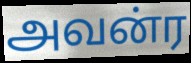
அவன்ர